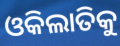
ଓକିଲାତିକୁ